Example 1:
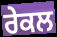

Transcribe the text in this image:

ਰੇਕਲ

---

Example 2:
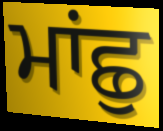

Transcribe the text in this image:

ਮਾਂਛੁ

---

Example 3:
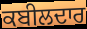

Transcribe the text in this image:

ਕਬੀਲਦਾਰ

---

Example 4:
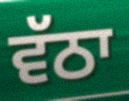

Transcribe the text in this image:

ਵੱਠਾ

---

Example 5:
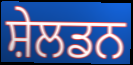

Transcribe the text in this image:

ਸ਼ੇਲਡਨ